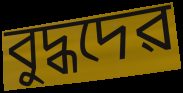
বুদ্ধদেৱ